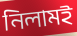
নিলামই